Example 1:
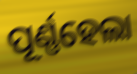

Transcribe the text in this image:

ପୂର୍ଣ୍ଣହେଲା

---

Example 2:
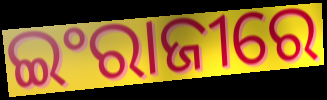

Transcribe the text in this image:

ଇଂରାଜୀରେ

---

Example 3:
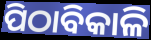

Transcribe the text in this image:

ପିଠାବିକାଳି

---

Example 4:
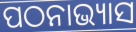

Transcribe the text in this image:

ପଠନାଭ୍ୟାସ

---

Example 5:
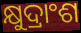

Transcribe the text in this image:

କ୍ଷୁଦ୍ରାଂଶ